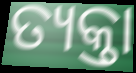
ତ୍ୟକ୍ତା